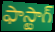
ఫాస్టాగ్